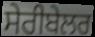
ਸੇਰੀਬੇਲਰ